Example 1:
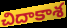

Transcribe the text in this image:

చిదాకాశ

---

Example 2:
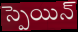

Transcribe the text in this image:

స్పెయిన్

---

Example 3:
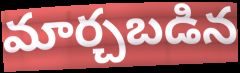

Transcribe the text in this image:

మార్చబడిన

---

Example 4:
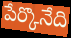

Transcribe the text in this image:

పేర్కొనేది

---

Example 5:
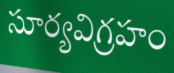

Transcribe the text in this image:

సూర్యవిగ్రహం